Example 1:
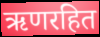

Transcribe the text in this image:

ऋणरहित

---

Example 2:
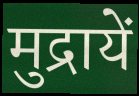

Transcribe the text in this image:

मुद्रायें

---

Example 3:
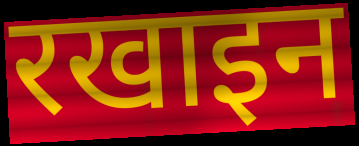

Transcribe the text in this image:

रखाइन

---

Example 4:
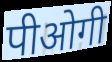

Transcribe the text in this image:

पीओगी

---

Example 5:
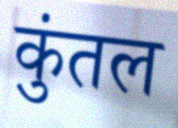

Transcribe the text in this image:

कुंतल